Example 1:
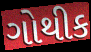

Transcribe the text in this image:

ગોથીક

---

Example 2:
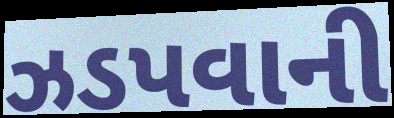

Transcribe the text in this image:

ઝડપવાની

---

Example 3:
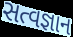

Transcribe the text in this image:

સત્વજ્ઞાન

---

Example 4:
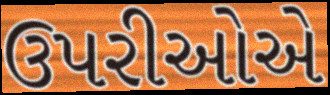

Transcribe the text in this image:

ઉપરીઓએ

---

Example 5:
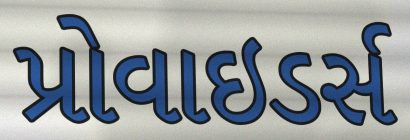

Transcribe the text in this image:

પ્રોવાઇડર્સ